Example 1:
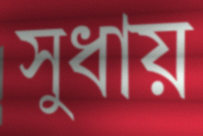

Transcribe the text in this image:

সুধায়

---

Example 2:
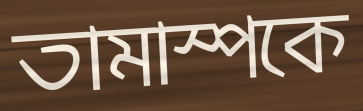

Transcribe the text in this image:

তামাস্পকে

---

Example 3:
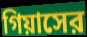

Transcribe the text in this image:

গিয়াসের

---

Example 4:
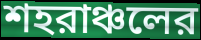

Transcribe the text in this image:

শহরাঞ্চলের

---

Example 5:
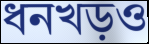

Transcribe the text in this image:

ধনখড়ও